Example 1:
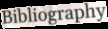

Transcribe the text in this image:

Bibliography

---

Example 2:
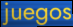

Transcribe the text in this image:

juegos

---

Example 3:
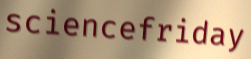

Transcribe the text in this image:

sciencefriday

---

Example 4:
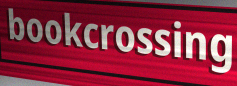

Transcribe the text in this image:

bookcrossing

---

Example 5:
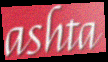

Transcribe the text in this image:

ashta